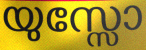
യുസ്സോ